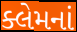
ક્લેમનાં